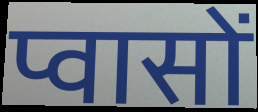
प्वासों